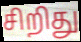
சிறிது